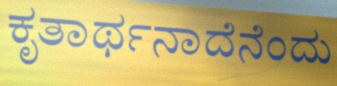
ಕೃತಾರ್ಥನಾದೆನೆಂದು